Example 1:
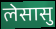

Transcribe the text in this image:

लेसासु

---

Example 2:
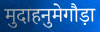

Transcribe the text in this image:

मुदाहनुमेगौड़ा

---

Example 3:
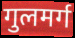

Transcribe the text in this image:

गुलमर्ग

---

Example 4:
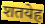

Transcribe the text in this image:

शतयेह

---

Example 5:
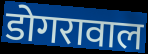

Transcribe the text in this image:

डोगरावाल